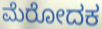
ಮೆರೋದಕ